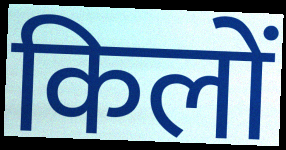
किलों